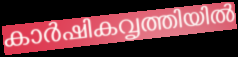
കാർഷികവൃത്തിയിൽ